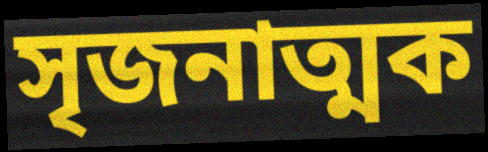
সৃজনাত্মক